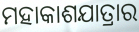
ମହାକାଶଯାତ୍ରାର